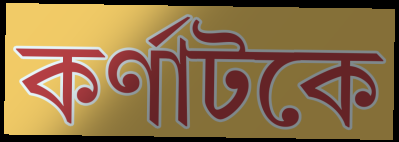
কর্ণাটকে